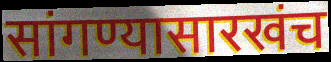
सांगण्यासारखंच